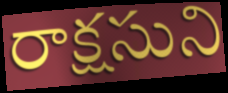
రాక్షసుని